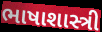
ભાષાશાસ્ત્રી